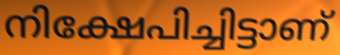
നിക്ഷേപിച്ചിട്ടാണ്